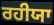
ਰਹੀਯਾ